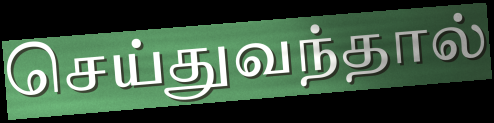
செய்துவந்தால்